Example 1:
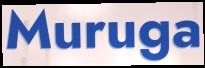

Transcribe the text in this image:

Muruga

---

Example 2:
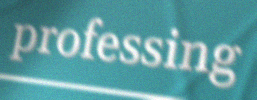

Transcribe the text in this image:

professing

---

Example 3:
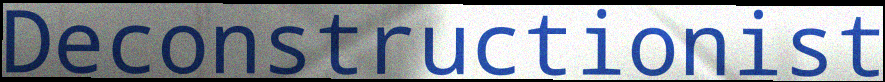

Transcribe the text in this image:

Deconstructionist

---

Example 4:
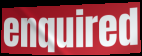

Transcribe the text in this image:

enquired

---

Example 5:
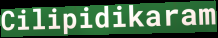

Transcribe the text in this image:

Cilipidikaram